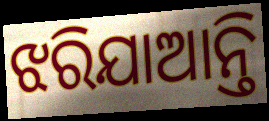
ଝରିଯାଆନ୍ତି